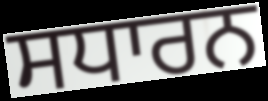
ਸਧਾਰਨ